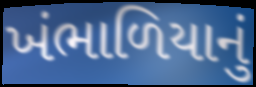
ખંભાળિયાનું